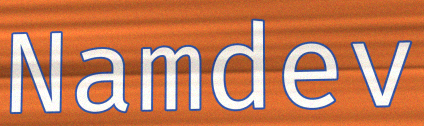
Namdev